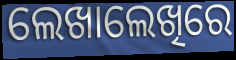
ଲେଖାଲେଖିରେ